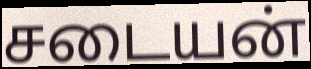
சடையன்